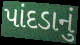
પાંદડાનું